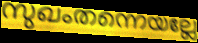
സുഖംതന്നെയല്ലേ